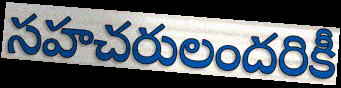
సహచరులందరికీ